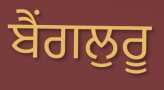
ਬੈਂਗਲੁਰੂ